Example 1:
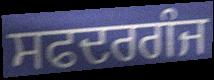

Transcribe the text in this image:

ਸਫਦਰਗੰਜ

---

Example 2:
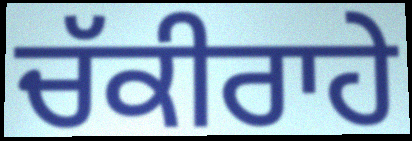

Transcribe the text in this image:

ਚੱਕੀਰਾਹੇ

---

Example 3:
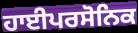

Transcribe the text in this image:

ਹਾਈਪਰਸੋਨਿਕ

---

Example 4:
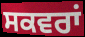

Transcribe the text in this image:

ਸਕਵਰਾਂ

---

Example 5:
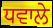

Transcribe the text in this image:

ਧਵਾਲੇ